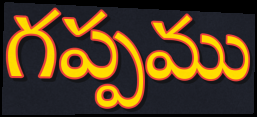
గప్పము